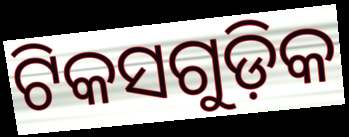
ଟିକସଗୁଡ଼ିକ